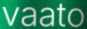
vaato